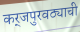
कर्जपुरवठ्याची